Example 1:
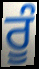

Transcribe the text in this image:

ਰੂੰ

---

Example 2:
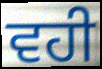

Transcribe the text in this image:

ਵਹੀ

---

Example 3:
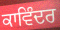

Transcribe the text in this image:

ਕਾਵਿੰਦਰ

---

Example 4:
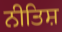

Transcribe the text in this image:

ਨੀਤਿਸ਼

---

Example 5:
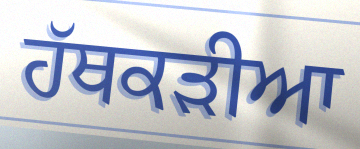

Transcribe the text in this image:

ਹੱਥਕੜੀਆ